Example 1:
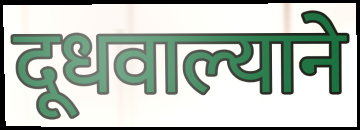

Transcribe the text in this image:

दूधवाल्याने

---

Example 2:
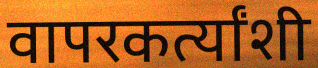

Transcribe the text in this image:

वापरकर्त्यांशी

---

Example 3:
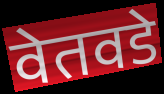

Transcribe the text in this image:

वेतवडे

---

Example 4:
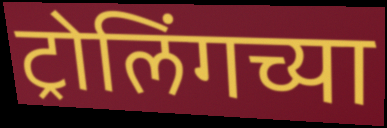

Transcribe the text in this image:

ट्रोलिंगच्या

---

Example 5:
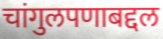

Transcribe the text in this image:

चांगुलपणाबद्दल